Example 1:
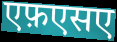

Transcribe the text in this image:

एफ़एसए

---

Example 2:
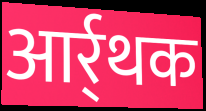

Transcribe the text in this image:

आर्र्थक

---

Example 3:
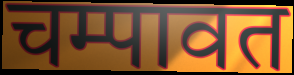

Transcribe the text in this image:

चम्पावत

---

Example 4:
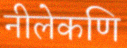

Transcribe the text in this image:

नीलेकणि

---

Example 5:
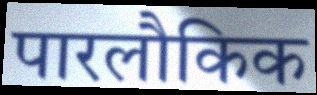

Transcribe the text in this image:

पारलौकिक